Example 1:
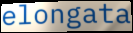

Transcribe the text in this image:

elongata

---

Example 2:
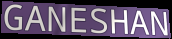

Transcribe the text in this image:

GANESHAN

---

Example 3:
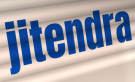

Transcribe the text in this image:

jitendra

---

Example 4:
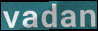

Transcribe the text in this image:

vadan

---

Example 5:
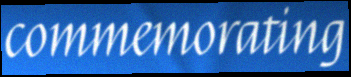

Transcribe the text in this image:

commemorating